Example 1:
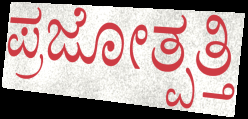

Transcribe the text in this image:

ಪ್ರಜೋತ್ಪತ್ತಿ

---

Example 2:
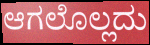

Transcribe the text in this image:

ಆಗಲೊಲ್ಲದು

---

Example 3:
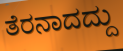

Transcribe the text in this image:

ತೆರನಾದದ್ದು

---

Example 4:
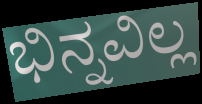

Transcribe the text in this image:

ಭಿನ್ನವಿಲ್ಲ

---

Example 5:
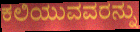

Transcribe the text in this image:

ಕಲಿಯುವವರನ್ನು